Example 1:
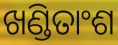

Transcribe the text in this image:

ଖଣ୍ଡିତାଂଶ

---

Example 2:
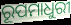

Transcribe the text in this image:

ରୂପମାଧୁରୀ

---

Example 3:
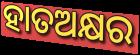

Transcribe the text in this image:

ହାତଅକ୍ଷର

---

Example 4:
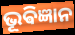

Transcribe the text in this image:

ଭୂଵିଜ୍ଞାନ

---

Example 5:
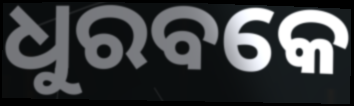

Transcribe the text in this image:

ଧୁରବକେ